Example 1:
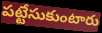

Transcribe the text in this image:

పట్టేసుకుంటారు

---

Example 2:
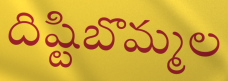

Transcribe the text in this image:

దిష్టిబొమ్మల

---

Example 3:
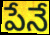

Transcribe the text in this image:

పేనే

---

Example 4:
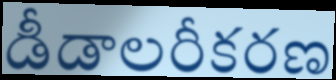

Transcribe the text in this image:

డీడాలరీకరణ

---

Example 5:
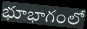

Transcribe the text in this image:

భూభాగంలో